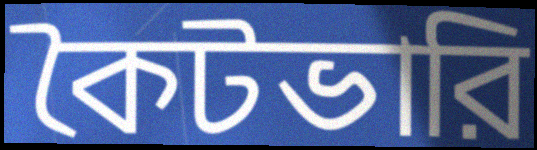
কৈটভারি